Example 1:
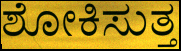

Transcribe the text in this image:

ಶೋಕಿಸುತ್ತ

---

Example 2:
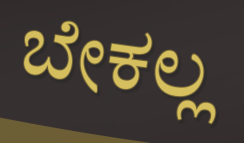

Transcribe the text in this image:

ಬೇಕಲ್ಲ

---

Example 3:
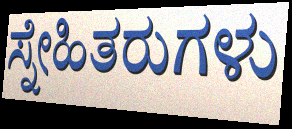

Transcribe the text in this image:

ಸ್ನೇಹಿತರುಗಳು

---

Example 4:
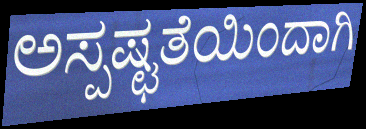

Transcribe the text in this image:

ಅಸ್ಪಷ್ಟತೆಯಿಂದಾಗಿ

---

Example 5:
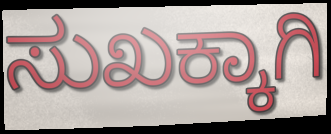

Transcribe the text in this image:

ಸುಖಕ್ಕಾಗಿ